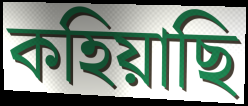
কহিয়াছি